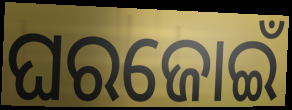
ଘରଜୋଇଁ